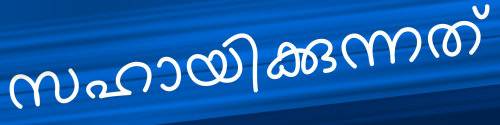
സഹായിക്കുന്നത്